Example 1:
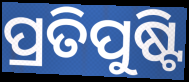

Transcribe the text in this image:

ପ୍ରତିପୁଷ୍ଟି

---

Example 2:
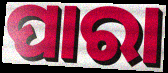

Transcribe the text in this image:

ପାରା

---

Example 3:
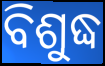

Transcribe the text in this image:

ବିଶୁଦ୍ଧ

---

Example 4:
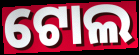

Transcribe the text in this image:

ଟୋଲ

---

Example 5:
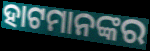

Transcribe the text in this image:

ହାଟମାନଙ୍କର